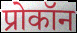
प्रोकॉन